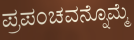
ಪ್ರಪಂಚವನ್ನೊಮ್ಮೆ